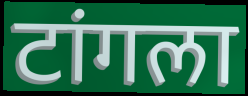
टांगला